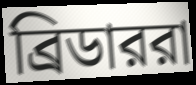
ব্রিডাররা